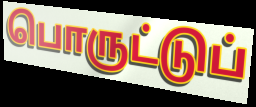
பொருட்டுப்